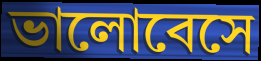
ভালোবেসে